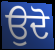
ਉਦੋ